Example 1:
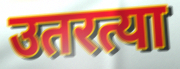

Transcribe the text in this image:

उतरत्या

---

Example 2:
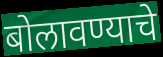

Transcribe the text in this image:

बोलावण्याचे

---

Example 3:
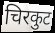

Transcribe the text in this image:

चिरकुट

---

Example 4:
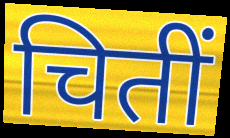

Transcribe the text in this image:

चितीं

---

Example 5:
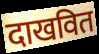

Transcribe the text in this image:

दाखवित